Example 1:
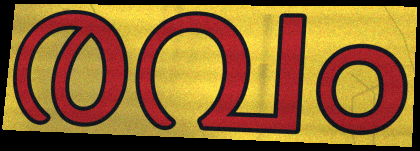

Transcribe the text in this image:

രവം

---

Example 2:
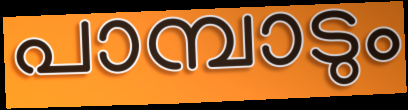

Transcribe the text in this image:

പാമ്പാടും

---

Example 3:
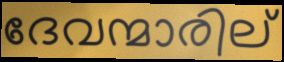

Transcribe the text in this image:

ദേവന്മാരില്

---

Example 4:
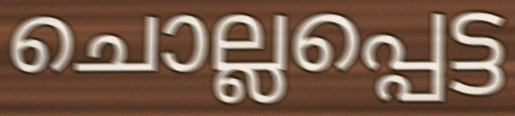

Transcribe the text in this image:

ചൊല്ലപ്പെട്ട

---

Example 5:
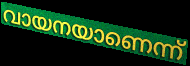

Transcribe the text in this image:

വായനയാണെന്ന്